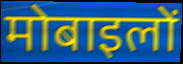
मोबाइलों